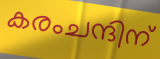
കരംചന്ദിന്